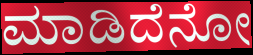
ಮಾಡಿದೆನೋ